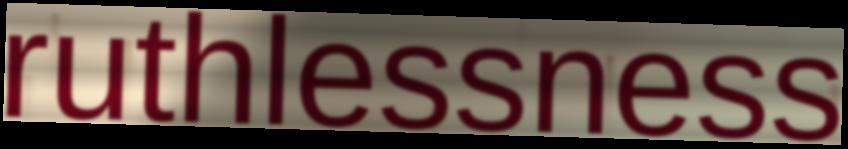
ruthlessness